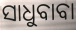
ସାଧୁବାବା